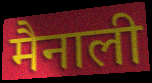
मैनाली